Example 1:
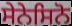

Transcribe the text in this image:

ਸੇਨੇਸਿਨੋ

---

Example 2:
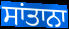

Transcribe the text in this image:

ਸਾਂਤਾਨਾ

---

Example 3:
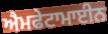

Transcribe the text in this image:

ਐਮਫੇਟਾਮਾਈਨ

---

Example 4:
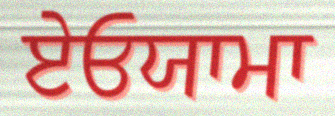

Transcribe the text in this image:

ਏਓਯਾਮਾ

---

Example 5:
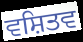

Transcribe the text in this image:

ਵਸ਼ਿਤਵ